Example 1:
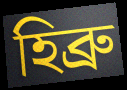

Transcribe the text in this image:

হিব্ৰু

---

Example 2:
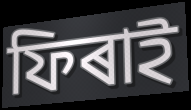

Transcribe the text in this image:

ফিৰাই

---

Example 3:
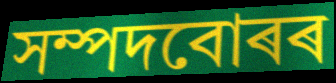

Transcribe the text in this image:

সম্পদবোৰৰ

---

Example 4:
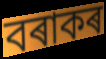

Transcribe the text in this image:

বৰাকৰ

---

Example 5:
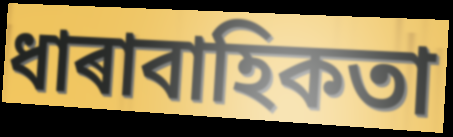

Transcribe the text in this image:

ধাৰাবাহিকতা